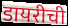
डायरीची